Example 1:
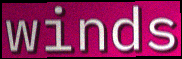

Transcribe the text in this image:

winds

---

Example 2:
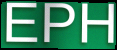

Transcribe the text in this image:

EPH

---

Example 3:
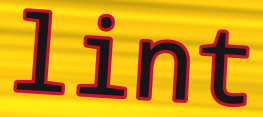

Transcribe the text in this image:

lint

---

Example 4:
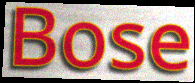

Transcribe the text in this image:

Bose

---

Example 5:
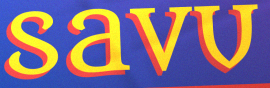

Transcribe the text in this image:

savu